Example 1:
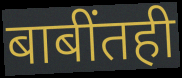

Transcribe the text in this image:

बाबींतही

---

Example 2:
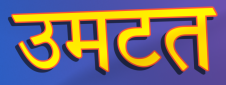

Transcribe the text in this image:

उमटत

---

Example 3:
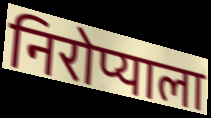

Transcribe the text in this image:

निरोप्याला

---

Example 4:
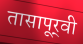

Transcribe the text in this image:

तासापूर्वी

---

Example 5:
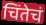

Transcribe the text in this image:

चिंतेचं